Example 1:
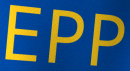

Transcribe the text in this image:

EPP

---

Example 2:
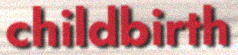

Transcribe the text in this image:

childbirth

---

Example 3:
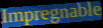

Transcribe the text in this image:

Impregnable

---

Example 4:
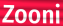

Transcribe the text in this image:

Zooni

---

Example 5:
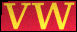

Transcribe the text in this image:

vw